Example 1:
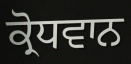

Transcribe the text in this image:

ਕ੍ਰੋਧਵਾਨ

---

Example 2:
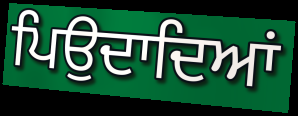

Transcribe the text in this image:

ਪਿਉਦਾਦਿਆਂ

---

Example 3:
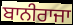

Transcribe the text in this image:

ਬਾਨੀਰਾਜਾ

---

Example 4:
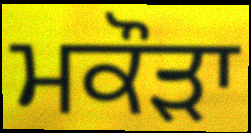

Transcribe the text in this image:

ਮਕੌੜਾ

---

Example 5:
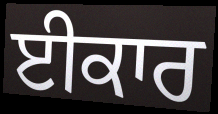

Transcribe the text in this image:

ਈਕਾਰ